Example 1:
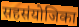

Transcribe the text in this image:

सहसंयोजिका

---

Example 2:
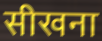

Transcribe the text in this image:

सीखना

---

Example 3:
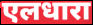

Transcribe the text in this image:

एलधारा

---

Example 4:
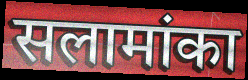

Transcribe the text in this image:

सलामांका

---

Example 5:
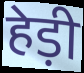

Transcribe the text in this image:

हेड़ी